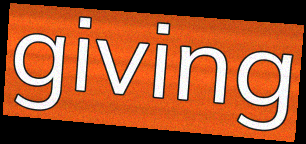
giving